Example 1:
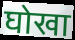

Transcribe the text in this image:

घोखा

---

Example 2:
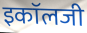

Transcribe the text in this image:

इकॉलजी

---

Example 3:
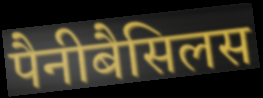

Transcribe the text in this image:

पैनीबैसिलस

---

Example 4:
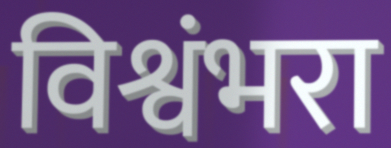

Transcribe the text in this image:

विश्वंभरा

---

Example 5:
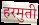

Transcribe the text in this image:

हरमुती